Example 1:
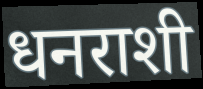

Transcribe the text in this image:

धनराशी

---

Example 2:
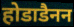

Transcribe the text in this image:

होडाडैनन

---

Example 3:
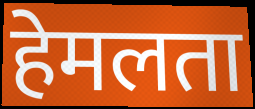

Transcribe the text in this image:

हेमलता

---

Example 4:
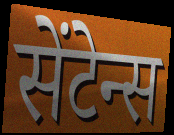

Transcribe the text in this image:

सेंटेन्स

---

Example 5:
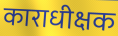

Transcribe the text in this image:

काराधीक्षक